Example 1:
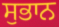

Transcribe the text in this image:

ਸੁਭਾਨ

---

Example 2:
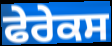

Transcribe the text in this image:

ਫੇਰੇਕਸ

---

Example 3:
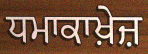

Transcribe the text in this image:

ਧਮਾਕਾਖ਼ੇਜ਼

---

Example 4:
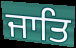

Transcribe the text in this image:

ਜਾਤਿ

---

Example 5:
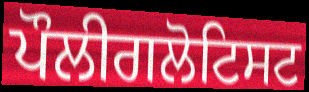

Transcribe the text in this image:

ਪੌਲੀਗਲੋਟਿਸਟ